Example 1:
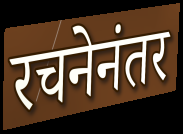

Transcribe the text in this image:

रचनेनंतर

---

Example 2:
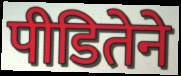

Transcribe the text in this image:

पीडितेने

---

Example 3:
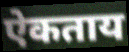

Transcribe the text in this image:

ऐकताय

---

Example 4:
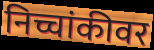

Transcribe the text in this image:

निच्चांकीवर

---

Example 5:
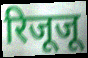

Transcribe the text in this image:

रिजूजू